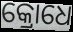
କ୍ରୋଧେ